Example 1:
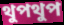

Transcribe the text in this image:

থুপথুপ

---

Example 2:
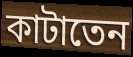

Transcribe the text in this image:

কাটাতেন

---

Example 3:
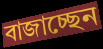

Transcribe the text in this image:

বাজাচ্ছেন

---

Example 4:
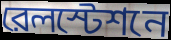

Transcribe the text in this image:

রেলস্টেশনে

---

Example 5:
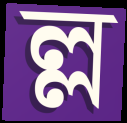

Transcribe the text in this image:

ল্ল